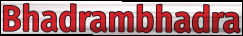
Bhadrambhadra